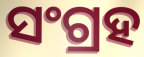
ସଂଗ୍ରହ